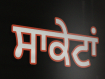
ਸਾਕੇਟਾਂ